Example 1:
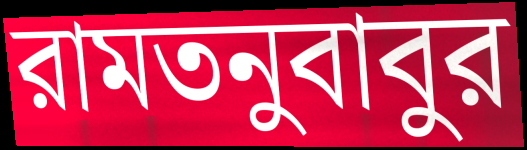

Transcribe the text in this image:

রামতনুবাবুর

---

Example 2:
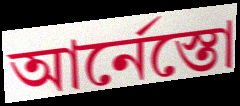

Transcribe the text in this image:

আর্নেস্তো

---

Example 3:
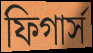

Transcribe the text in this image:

ফিগার্স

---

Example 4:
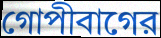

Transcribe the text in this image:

গোপীবাগের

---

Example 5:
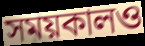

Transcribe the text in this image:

সময়কালও